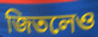
জিতলেও